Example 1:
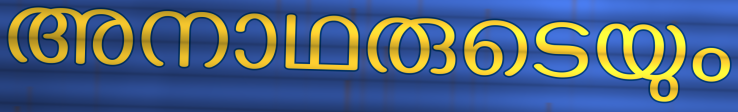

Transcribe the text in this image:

അനാഥരുടെയും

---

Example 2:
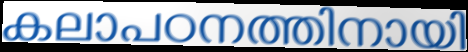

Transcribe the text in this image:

കലാപഠനത്തിനായി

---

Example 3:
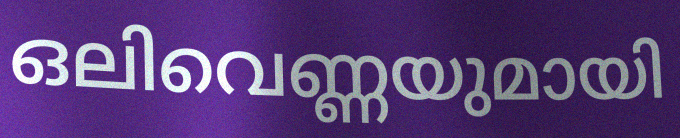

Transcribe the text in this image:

ഒലിവെണ്ണയുമായി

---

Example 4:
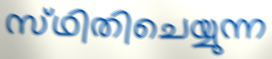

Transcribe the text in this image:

സ്‌ഥിതിചെയ്യുന്ന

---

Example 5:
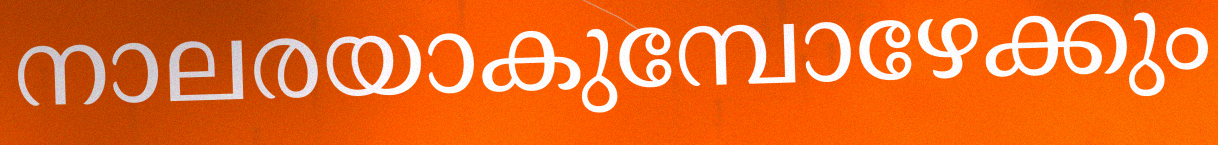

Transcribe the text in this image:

നാലരയാകുമ്പോഴേക്കും